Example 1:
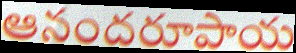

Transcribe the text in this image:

ఆనందరూపాయ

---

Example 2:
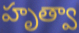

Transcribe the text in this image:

హృత్వా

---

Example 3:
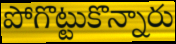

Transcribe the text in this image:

పోగొట్టుకొన్నారు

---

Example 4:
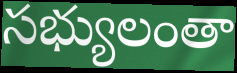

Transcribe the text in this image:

సభ్యులంతా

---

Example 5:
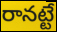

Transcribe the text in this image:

రానట్టే